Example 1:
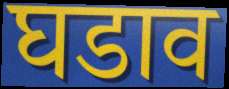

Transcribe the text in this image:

घडाव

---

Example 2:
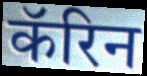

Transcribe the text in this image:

कॅरिन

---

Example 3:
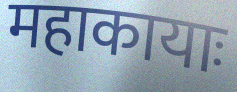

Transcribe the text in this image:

महाकायाः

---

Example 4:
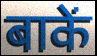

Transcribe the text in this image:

बाकें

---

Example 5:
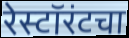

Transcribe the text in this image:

रेस्टॉरंटचा